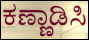
ಕಣ್ಣಾಡಿಸಿ